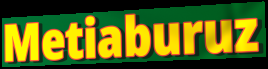
Metiaburuz